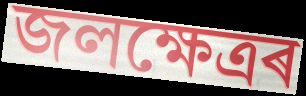
জলক্ষেত্ৰৰ